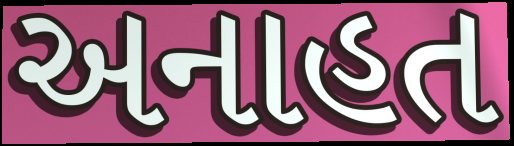
અનાહત